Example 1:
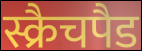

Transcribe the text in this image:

स्क्रैचपैड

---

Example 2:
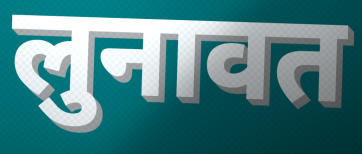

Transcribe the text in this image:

लुनावत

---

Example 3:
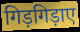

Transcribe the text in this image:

गिड़गिड़ाए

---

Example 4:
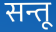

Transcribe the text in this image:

सन्तू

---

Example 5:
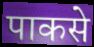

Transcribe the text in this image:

पाकसे